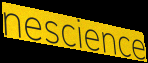
nescience